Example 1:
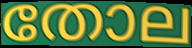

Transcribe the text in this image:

തോല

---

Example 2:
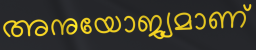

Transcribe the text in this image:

അനുയോജ്യമാണ്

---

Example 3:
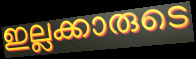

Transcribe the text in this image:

ഇല്ലക്കാരുടെ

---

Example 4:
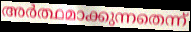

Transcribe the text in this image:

അർത്ഥമാക്കുന്നതെന്ന്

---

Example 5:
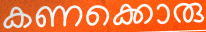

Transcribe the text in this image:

കണക്കൊരു